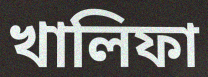
খালিফা